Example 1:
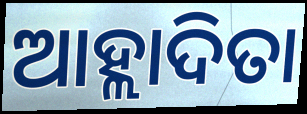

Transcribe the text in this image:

ଆହ୍ଲାଦିତା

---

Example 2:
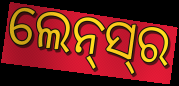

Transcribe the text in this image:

ଲେନ୍‌ସ୍‍ର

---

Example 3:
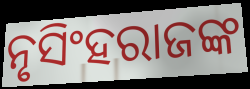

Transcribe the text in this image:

ନୃସିଂହରାଜଙ୍କ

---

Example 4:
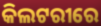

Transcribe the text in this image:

କିଲଟରୀରେ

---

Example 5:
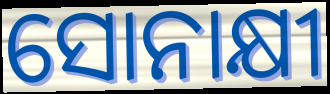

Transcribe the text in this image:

ସୋନାକ୍ଷୀ